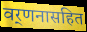
वर्णनासहित